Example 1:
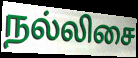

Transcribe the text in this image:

நல்லிசை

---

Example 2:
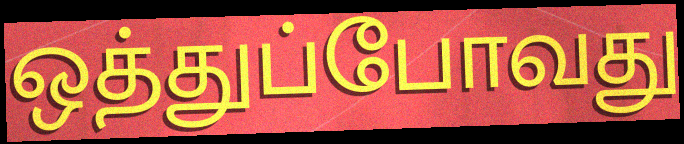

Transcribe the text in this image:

ஒத்துப்போவது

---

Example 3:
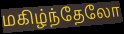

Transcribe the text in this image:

மகிழ்ந்தேலோ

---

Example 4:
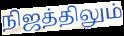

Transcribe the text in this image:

நிஜத்திலும்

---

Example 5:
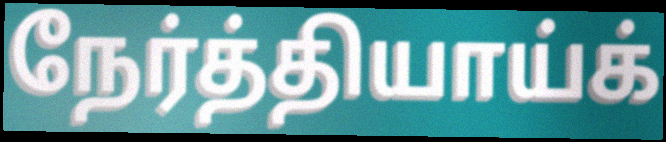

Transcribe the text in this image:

நேர்த்தியாய்க்